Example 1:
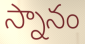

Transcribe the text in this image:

స్నానం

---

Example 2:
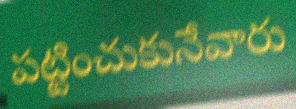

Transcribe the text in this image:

పట్టించుకునేవారు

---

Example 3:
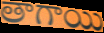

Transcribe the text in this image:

తాగాయి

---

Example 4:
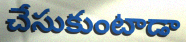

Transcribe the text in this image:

చేసుకుంటాడా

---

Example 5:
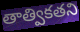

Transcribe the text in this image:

తాత్వికతని